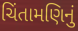
ચિંતામણિનું